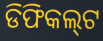
ଡିଫିକଲ୍‌ଟ